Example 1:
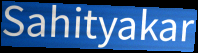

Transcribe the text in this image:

Sahityakar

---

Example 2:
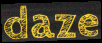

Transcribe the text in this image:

daze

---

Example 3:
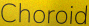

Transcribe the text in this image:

Choroid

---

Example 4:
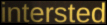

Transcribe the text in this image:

intersted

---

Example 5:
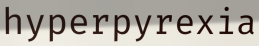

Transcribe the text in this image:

hyperpyrexia